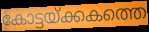
കോട്ടയ്ക്കകത്തെ